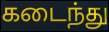
கடைந்து